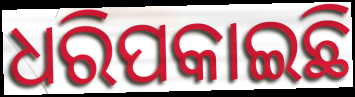
ଧରିପକାଇଛି